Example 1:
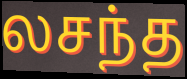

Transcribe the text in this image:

லசந்த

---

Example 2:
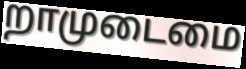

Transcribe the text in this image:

றாமுடைமை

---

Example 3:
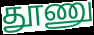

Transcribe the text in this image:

தூணு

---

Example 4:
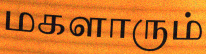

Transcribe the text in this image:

மகளாரும்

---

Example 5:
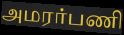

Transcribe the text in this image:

அமரர்பணி